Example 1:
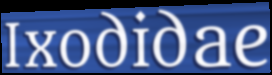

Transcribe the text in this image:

Ixodidae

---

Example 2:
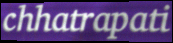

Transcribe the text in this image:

chhatrapati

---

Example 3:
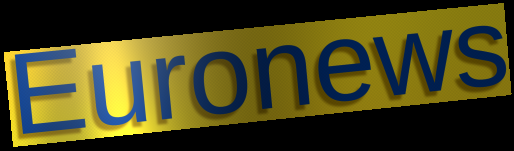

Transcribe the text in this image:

Euronews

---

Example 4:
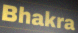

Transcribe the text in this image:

Bhakra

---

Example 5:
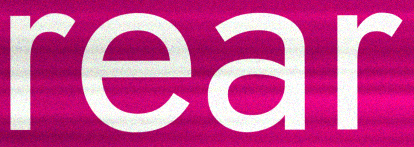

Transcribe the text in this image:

rear